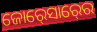
ଜୋର୍‍ସୋର୍‍ରେ